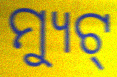
ମ୍ୟୁଟ୍